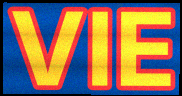
VIE